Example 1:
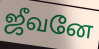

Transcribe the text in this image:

ஜீவனே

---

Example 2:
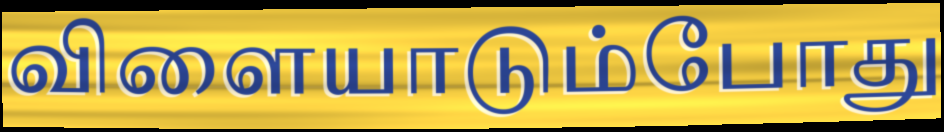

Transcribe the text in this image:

விளையாடும்போது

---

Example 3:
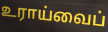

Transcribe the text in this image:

உராய்வைப்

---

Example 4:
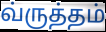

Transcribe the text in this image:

வ்ருத்தம்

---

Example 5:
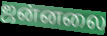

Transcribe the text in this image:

ஜன்னலை